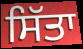
ਸਿੱਤਾ